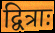
द्वित्राः